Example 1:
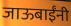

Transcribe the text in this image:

जाऊबाईंनी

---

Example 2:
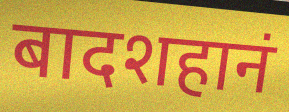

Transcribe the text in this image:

बादशहानं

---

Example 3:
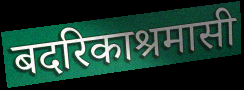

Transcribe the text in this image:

बदरिकाश्रमासी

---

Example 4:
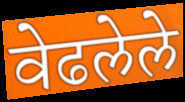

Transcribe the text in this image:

वेढलेले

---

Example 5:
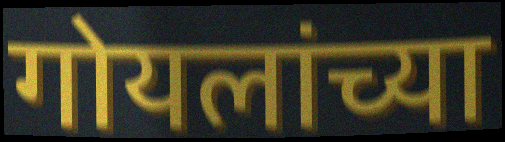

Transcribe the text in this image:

गोयलांच्या